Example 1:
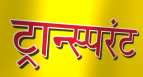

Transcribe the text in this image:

ट्रान्स्परंट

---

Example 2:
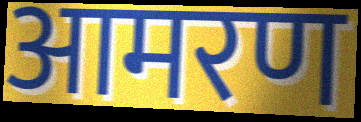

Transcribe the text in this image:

आमरण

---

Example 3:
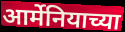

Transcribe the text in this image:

आर्मेनियाच्या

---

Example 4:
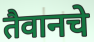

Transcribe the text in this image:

तैवानचे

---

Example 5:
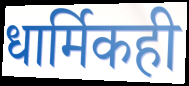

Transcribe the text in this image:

धार्मिकही